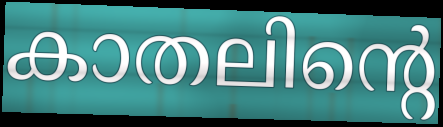
കാതലിന്റെ